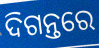
ଦିଗନ୍ତରେ